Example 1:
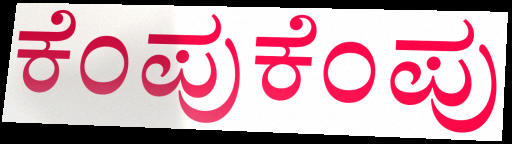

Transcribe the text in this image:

ಕೆಂಪುಕೆಂಪು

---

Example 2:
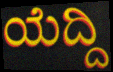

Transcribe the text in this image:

ಯೆದ್ದಿ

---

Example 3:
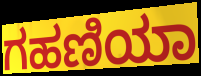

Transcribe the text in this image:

ಗಹಣಿಯಾ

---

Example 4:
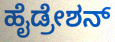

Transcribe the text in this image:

ಹೈಡ್ರೇಶನ್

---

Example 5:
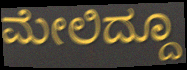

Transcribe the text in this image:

ಮೇಲಿದ್ದೂ